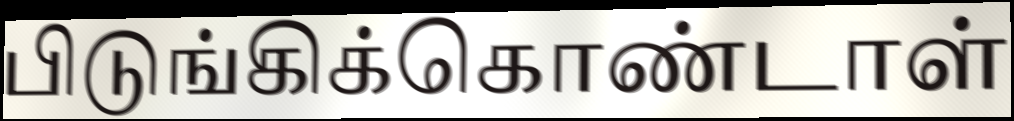
பிடுங்கிக்கொண்டாள்